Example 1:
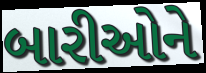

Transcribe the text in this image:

બારીઓને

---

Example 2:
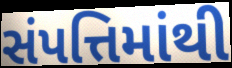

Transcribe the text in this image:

સંપત્તિમાંથી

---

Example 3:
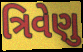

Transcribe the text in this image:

ત્રિવેણુ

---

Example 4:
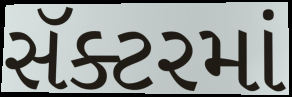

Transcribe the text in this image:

સૅક્ટરમાં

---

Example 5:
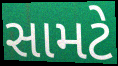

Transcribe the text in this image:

સામટે